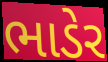
ભાડેર